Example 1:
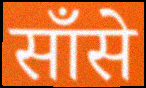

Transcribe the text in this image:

साँसे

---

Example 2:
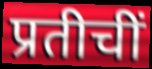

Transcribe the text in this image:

प्रतीचीं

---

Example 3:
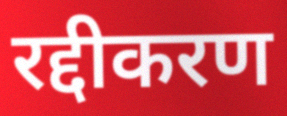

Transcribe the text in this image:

रद्दीकरण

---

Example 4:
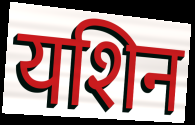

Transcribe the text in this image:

यशिन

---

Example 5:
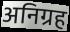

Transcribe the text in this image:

अनिग्रह